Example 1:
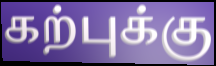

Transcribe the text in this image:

கற்புக்கு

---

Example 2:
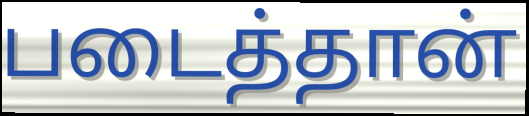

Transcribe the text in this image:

படைத்தான்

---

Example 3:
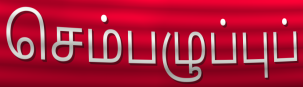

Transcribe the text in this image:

செம்பழுப்புப்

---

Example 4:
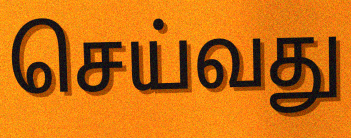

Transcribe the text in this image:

செய்வது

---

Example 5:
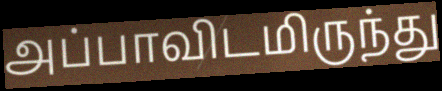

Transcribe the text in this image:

அப்பாவிடமிருந்து